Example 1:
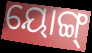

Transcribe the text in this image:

ୟୋଙ୍ଗ୍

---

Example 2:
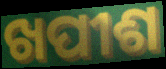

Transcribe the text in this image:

ଖପୀଶ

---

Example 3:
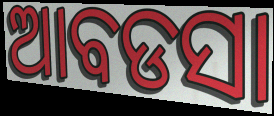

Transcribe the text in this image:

ଆବଡସା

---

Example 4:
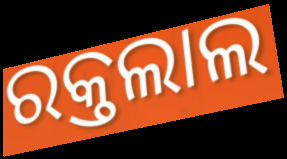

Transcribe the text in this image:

ରକ୍ତଲାଲ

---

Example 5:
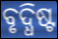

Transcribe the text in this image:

ବୃଦ୍ଧିଷ୍ଟ